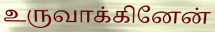
உருவாக்கினேன்